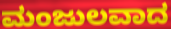
ಮಂಜುಲವಾದ